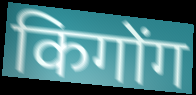
किगोंग